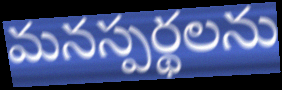
మనస్పర్థలను